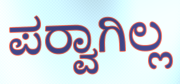
ಪರ‍್ವಾಗಿಲ್ಲ